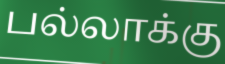
பல்லாக்கு